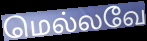
மெல்லவே